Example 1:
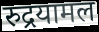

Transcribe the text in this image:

रुद्रयामल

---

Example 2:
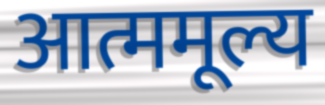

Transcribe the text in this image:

आत्ममूल्य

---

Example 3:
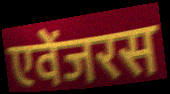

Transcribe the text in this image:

एवेंजरस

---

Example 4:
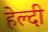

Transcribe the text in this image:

हेल्दी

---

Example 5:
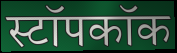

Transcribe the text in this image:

स्टॉपकॉक